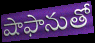
షాఫానుతో